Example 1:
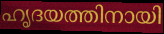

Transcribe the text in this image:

ഹൃദയത്തിനായി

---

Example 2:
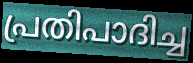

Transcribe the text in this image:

പ്രതിപാദിച്ച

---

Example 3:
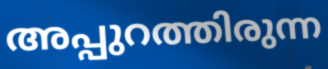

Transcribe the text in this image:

അപ്പുറത്തിരുന്ന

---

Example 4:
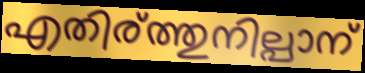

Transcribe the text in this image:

എതിര്ത്തുനില്പാന്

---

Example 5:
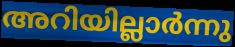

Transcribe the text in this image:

അറിയില്ലാർന്നു